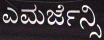
ಎಮರ್ಜೆನ್ಸಿ